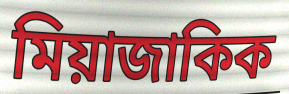
মিয়াজাকিক